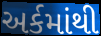
અર્કમાંથી